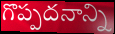
గొప్పదనాన్ని